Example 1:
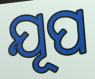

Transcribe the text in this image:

ଯୂପ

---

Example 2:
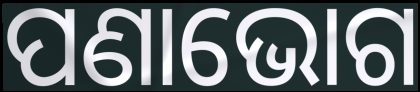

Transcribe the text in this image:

ପଣାଭୋଗ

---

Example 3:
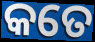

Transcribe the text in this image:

କତେ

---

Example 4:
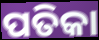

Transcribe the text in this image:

ପତିକା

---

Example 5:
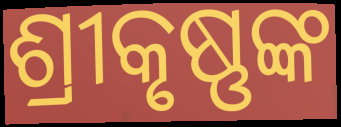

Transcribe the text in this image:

ଶ୍ରୀକୃଷ୍ଣଙ୍କ